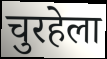
चुरहेला